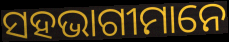
ସହଭାଗୀମାନେ